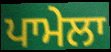
ਪਾਮੇਲਾ